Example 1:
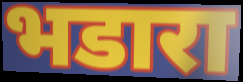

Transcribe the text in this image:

भडारा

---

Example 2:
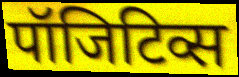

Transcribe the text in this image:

पॉजिटिव्स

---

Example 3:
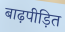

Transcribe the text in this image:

बाढ़पीड़ित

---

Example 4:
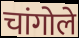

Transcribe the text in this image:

चांगोले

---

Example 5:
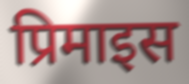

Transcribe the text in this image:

प्रिमाइस